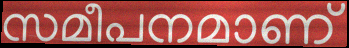
സമീപനമാണ്